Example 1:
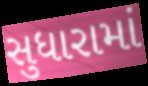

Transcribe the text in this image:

સુધારામાં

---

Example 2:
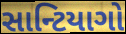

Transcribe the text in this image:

સાન્ટિયાગો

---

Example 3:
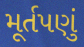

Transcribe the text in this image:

મૂર્તપણું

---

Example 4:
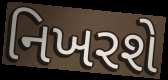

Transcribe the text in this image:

નિખરશે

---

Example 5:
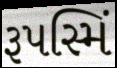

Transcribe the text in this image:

રૂપસ્મિં